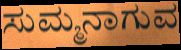
ಸುಮ್ಮನಾಗುವ